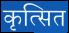
कृत्सित